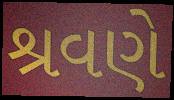
શ્રવણે